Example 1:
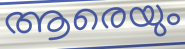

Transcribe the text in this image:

ആരെയും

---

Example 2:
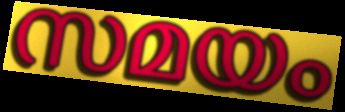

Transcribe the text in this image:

സമയം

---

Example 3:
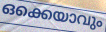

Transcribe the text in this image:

ഒക്കെയാവും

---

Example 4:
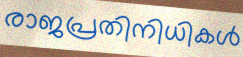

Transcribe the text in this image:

രാജപ്രതിനിധികൾ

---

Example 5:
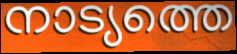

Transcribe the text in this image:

നാട്യത്തെ